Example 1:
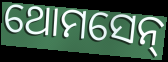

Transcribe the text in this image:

ଥୋମସେନ୍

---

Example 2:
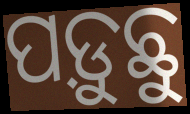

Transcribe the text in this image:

ପଡ଼ୁଛୁ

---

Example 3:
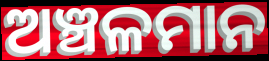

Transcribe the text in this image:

ଅଞ୍ଚଳମାନ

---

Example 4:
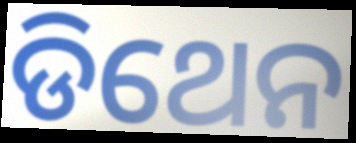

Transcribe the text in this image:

ଡିଥେନ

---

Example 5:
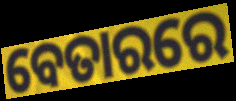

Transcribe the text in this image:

ବେତାରରେ